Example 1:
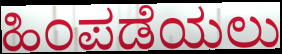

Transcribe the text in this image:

ಹಿಂಪಡೆಯಲು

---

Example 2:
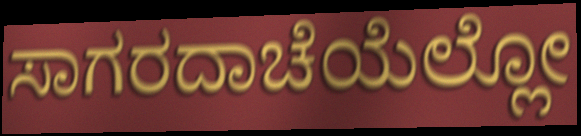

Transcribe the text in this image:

ಸಾಗರದಾಚೆಯೆಲ್ಲೋ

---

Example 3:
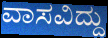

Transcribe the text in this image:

ವಾಸವಿದ್ದು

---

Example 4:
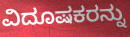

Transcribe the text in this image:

ವಿದೂಷಕರನ್ನು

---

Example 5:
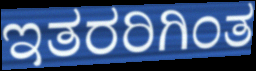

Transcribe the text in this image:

ಇತರರಿಗಿಂತ